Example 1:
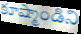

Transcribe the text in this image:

కూష్మాండిని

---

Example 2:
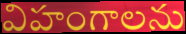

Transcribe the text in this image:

విహంగాలను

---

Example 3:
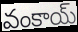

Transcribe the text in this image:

వంకాయ్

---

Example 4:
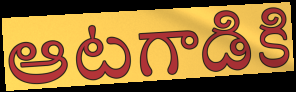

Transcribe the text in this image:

ఆటగాడికి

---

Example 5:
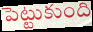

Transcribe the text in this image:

పెట్టుకుంది